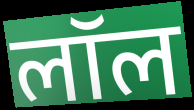
लॉल